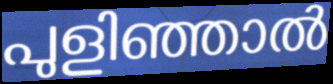
പുളിഞ്ഞാൽ